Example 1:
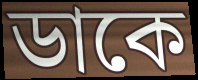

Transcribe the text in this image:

ডাকে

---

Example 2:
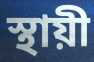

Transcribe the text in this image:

স্থায়ী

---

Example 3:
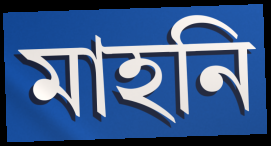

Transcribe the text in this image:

মাহনি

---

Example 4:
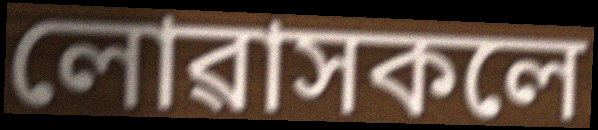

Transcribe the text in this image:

লোৱাসকলে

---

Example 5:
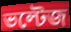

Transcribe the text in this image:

ভল্টেজ